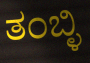
ತಂಬ್ಳಿ